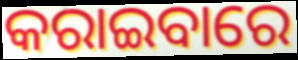
କରାଇବାରେ